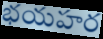
భయహర